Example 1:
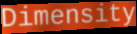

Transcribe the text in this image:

Dimensity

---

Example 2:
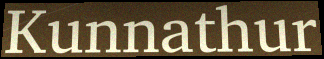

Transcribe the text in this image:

Kunnathur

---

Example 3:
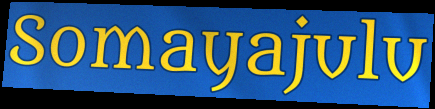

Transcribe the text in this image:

Somayajulu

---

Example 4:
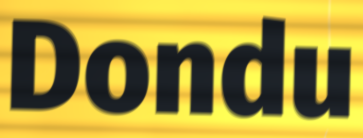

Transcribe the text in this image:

Dondu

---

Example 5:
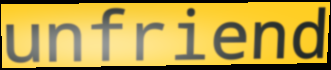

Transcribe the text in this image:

unfriend